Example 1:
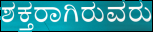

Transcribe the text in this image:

ಶಕ್ತರಾಗಿರುವರು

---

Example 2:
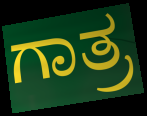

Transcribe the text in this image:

ಗಾತ್ರ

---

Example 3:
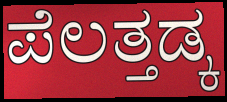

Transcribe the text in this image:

ಪೆಲತ್ತಡ್ಕ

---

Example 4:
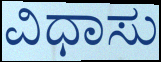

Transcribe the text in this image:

ವಿಧಾಸು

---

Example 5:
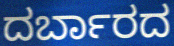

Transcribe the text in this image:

ದರ್ಬಾರದ